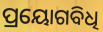
ପ୍ରୟୋଗବିଧି